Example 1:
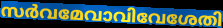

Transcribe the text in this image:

സർവമേവാവിവേശേതി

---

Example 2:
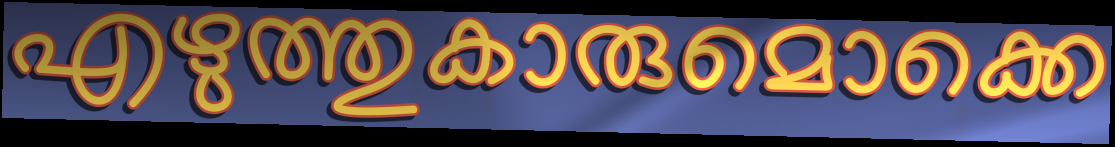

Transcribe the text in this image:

എഴുത്തുകാരുമൊക്കെ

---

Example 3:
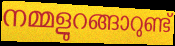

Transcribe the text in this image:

നമ്മളുറങ്ങാറുണ്ട്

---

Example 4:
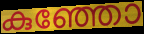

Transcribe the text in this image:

കുഞ്ഞോ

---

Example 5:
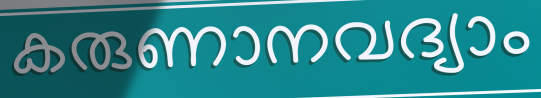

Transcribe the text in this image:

കരുണാനവദ്യാം